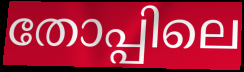
തോപ്പിലെ